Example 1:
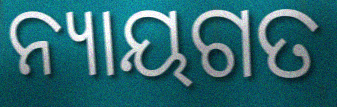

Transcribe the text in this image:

ନ୍ୟାୟଗତ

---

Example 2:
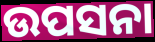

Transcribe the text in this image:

ଉପସନା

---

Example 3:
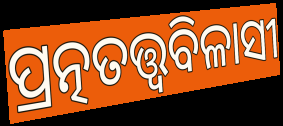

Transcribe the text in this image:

ପ୍ରତ୍ନତତ୍ତ୍ବବିଳାସୀ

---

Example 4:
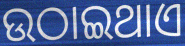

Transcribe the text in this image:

ଉଠାଇଥାଏ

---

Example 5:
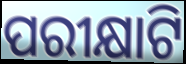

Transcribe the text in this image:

ପରୀକ୍ଷାଟି